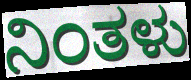
ನಿಂತಳು